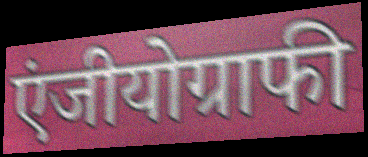
एंजीयोग्राफी